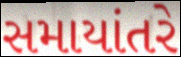
સમાયાંતરે